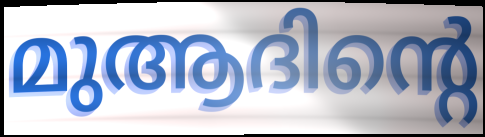
മുആദിന്റെ